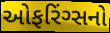
ઓફરિંગ્સનો